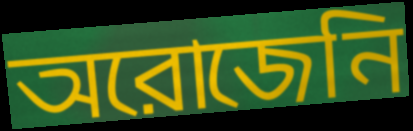
অরোজেনি